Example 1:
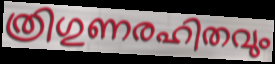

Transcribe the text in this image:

ത്രിഗുണരഹിതവും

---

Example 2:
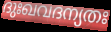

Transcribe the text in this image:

ദുഃഖവദന്യതഃ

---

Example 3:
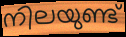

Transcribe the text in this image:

നിലയുണ്ട്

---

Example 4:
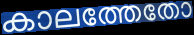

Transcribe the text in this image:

കാലത്തേതോ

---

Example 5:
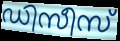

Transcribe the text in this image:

ഡിസീസ്